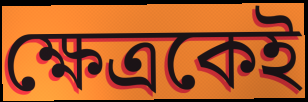
ক্ষেত্রকেই